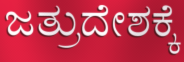
ಜತ್ರುದೇಶಕ್ಕೆ